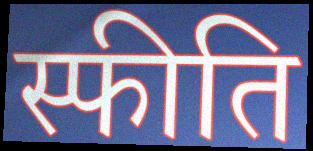
स्फीति